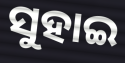
ସୁହାଇ